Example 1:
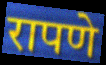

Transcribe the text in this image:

रापणे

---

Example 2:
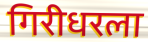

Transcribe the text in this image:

गिरीधरला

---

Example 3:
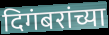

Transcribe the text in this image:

दिगंबरांच्या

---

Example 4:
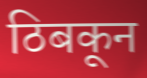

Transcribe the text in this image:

ठिबकून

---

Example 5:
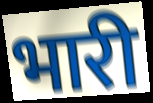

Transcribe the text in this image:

भारी